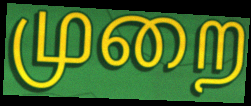
முறை